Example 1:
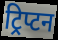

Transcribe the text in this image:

ट्रिप्टन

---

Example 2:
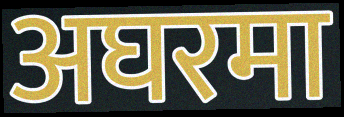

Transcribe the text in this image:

अघरमा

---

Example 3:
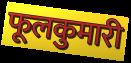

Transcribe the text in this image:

फूलकुमारी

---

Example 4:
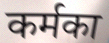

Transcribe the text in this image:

कर्मका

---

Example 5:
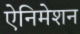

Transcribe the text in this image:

ऐनिमेशन